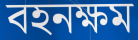
বহনক্ষম